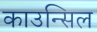
काउन्सिल